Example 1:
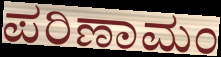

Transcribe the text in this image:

ಪರಿಣಾಮಂ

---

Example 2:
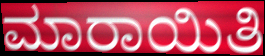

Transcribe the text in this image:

ಮಾರಾಯಿತಿ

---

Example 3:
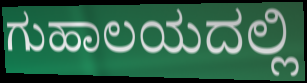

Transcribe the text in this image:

ಗುಹಾಲಯದಲ್ಲಿ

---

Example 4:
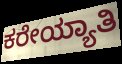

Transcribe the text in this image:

ಕರೇಯ್ಯಾತಿ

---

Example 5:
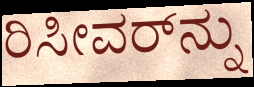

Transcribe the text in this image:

ರಿಸೀವರ್‌ನ್ನು